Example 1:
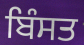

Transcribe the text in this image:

ਬਿੰਸਤ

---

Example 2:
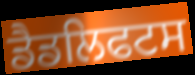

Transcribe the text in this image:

ਡੈਡਲਿਫਟਸ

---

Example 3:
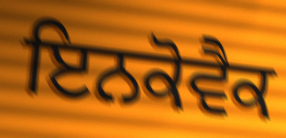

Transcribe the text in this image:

ਇਨਕੋਵੈਕ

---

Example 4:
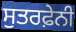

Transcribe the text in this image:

ਸੁਤਰਫ਼ੇਨੀ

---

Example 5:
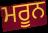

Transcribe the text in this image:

ਮਰੂਨ